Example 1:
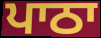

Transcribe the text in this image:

ਪਾਠਾ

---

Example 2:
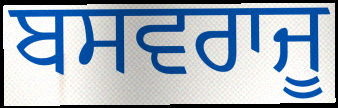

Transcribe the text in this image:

ਬਸਵਰਾਜੂ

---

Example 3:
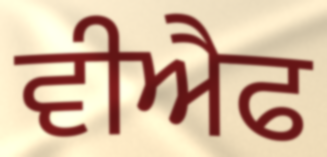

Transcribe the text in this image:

ਵੀਐਫ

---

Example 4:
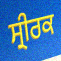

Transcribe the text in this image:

ਸ੍ਰੀਰਕ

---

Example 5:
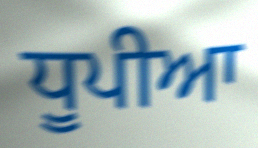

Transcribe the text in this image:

ਧੂਪੀਆ